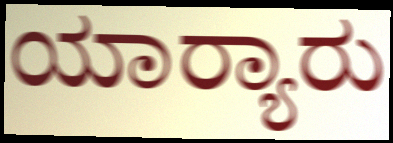
ಯಾರ್‍ಯಾರು